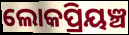
ଲୋକପ୍ରିୟଞ୍ଚ